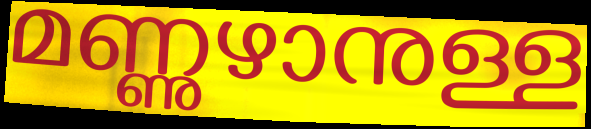
മണ്ണുഴാനുള്ള